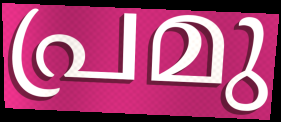
പ്രമു